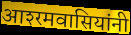
आश्रमवासियांनी